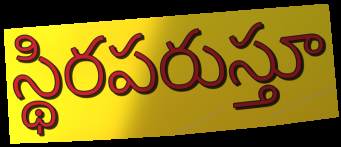
స్థిరపరుస్తూ